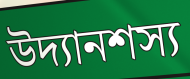
উদ্যানশস্য